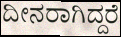
ದೀನರಾಗಿದ್ದರೆ